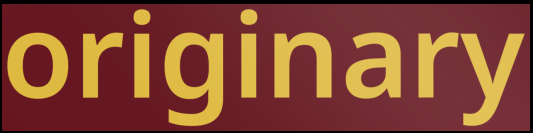
originary